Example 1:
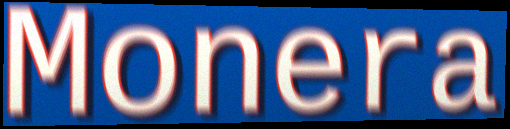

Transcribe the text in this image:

Monera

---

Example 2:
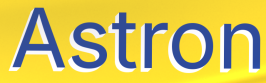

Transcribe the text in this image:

Astron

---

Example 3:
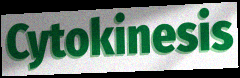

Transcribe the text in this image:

Cytokinesis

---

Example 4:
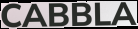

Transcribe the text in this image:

CABBLA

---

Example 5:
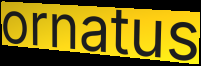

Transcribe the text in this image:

ornatus